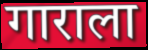
गाराला